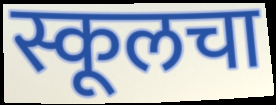
स्कूलचा